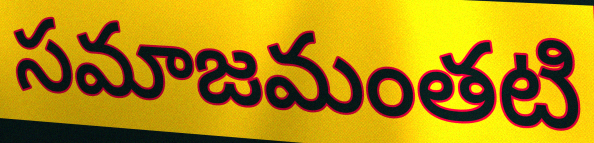
సమాజమంతటి